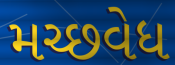
મચ્છવેધ